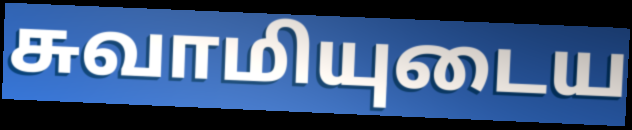
சுவாமியுடைய